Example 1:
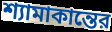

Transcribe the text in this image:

শ্যামাকান্তের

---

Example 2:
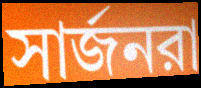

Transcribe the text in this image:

সার্জনরা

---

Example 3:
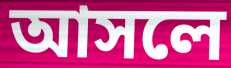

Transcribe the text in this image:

আসলে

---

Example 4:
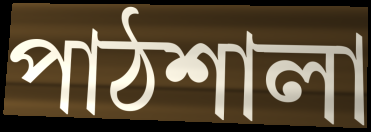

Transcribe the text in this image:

পাঠশালা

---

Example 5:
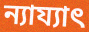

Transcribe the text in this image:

ন্যায্যাৎ